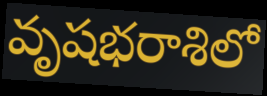
వృషభరాశిలో